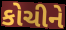
કોચીને